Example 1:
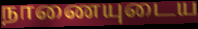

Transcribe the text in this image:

நாணையுடைய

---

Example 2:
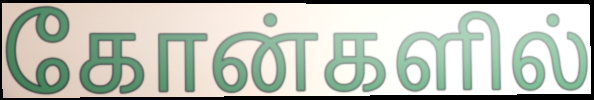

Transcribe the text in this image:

கோன்களில்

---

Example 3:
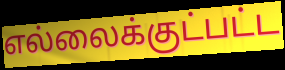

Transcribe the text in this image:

எல்லைக்குட்பட்ட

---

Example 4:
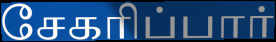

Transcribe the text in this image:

சேகரிப்பார்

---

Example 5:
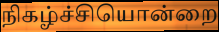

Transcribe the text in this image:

நிகழ்ச்சியொன்றை